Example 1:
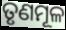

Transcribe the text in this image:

ତୃଣମୂଳ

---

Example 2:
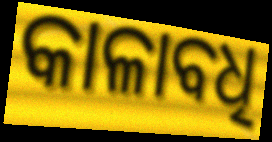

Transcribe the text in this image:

କାଳାବଧି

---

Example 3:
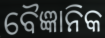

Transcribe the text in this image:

ବୈଜ୍ଞାନିକ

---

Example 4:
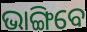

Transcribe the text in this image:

ଭାଙ୍ଗିବେ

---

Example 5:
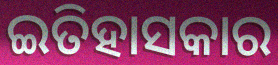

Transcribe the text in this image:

ଇତିହାସକାର